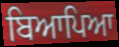
ਬਿਆਪਿਆ